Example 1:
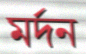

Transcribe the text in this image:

মৰ্দন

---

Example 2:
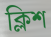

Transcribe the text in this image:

ক্লিশ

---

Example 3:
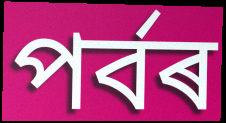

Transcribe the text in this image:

পৰ্বৰ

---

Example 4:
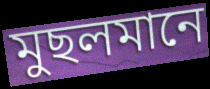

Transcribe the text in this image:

মুছলমানে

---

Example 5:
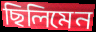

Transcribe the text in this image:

ছিলিমেন